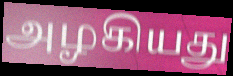
அழகியது